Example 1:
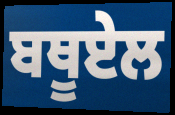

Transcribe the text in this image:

ਬਥੂਏਲ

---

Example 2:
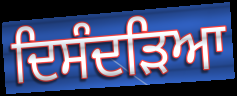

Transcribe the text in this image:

ਦਿਸੰਦੜਿਆ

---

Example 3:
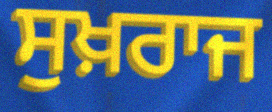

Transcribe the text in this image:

ਸੁਖ਼ਰਾਜ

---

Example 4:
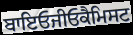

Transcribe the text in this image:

ਬਾਇਓਜੀਓਕੈਮਿਸਟ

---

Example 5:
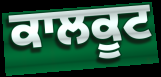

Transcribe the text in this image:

ਕਾਲਕੂਟ